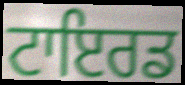
ਟਾਇਰਡ